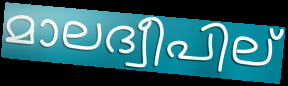
മാലദ്വീപില്